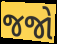
જજો